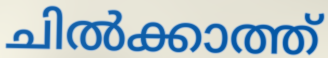
ചിൽക്കാത്ത്